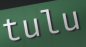
tulu